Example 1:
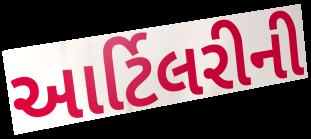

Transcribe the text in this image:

આર્ટિલરીની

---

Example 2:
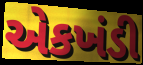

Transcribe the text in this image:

એકખંડી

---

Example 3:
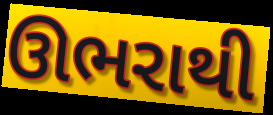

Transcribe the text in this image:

ઊભરાથી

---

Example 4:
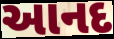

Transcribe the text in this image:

આનદ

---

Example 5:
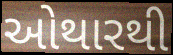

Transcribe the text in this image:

ઓથારથી